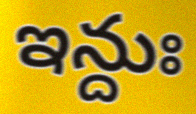
ఇన్దుః